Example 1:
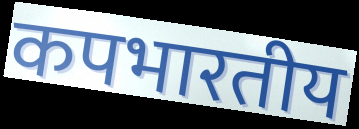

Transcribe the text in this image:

कपभारतीय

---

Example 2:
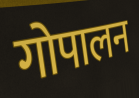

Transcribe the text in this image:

गोपालन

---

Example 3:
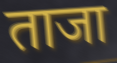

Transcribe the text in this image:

ताजा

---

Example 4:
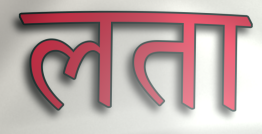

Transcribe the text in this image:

लता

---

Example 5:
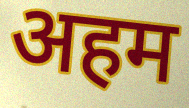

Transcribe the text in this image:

अहम